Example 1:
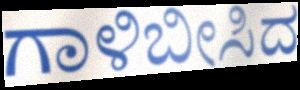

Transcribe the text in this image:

ಗಾಳಿಬೀಸಿದ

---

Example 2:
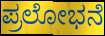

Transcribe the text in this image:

ಪ್ರಲೋಭನೆ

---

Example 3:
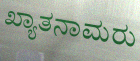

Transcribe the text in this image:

ಖ್ಯಾತನಾಮರು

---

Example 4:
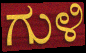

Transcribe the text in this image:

ಗುಳಿ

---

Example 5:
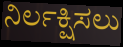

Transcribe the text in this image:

ನಿರ್ಲಕ್ಷಿಸಲು